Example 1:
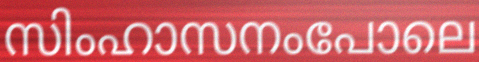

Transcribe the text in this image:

സിംഹാസനംപോലെ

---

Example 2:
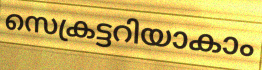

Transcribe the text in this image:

സെക്രട്ടറിയാകാം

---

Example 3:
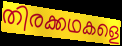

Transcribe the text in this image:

തിരക്കഥകളെ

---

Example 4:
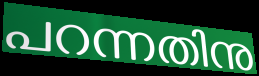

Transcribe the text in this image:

പറന്നതിനു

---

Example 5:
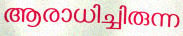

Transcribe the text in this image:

ആരാധിച്ചിരുന്ന